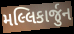
મલ્લિકાર્જુન